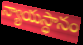
న్యాయస్ధానం